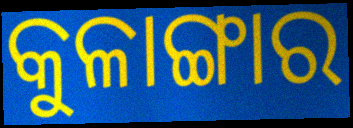
କୁଳାଙ୍ଗାର